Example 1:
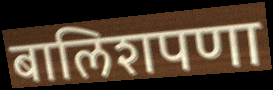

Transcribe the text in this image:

बालिशपणा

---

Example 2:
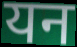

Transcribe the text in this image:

यन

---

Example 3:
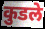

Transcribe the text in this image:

कुडले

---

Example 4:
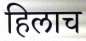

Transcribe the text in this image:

हिलाच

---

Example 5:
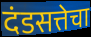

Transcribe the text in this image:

दंडसत्तेचा